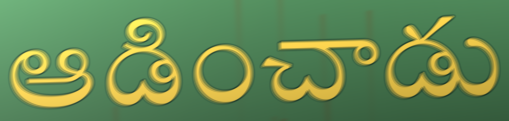
ఆడించాడు